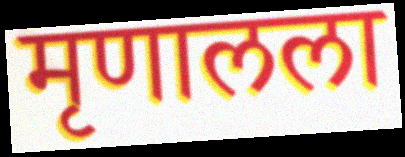
मृणालला